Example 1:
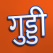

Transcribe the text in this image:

गुड्डी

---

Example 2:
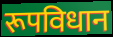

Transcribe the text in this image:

रूपविधान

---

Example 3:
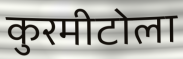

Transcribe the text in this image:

कुरमीटोला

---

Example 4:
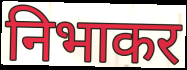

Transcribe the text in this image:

निभाकर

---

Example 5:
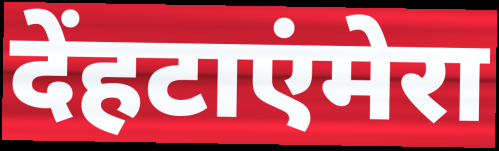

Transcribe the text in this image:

देंहटाएंमेरा